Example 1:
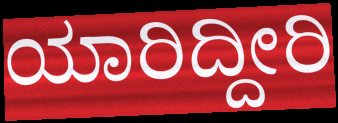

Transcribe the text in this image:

ಯಾರಿದ್ದೀರಿ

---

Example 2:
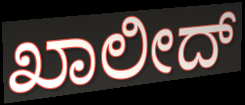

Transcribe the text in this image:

ಖಾಲೀದ್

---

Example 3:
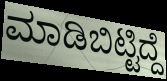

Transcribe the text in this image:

ಮಾಡಿಬಿಟ್ಟಿದ್ದೆ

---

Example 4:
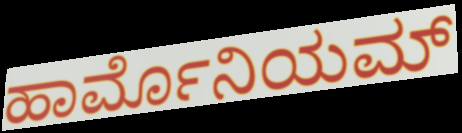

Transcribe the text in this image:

ಹಾರ್ಮೊನಿಯಮ್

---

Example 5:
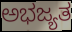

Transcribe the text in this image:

ಅಭಜ್ಯತ